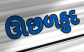
ઊછળકુદ